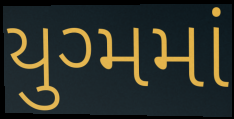
યુગ્મમાં